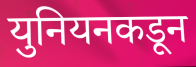
युनियनकडून